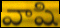
వాషి